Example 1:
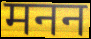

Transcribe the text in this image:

मनन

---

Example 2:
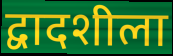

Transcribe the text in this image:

द्वादशीला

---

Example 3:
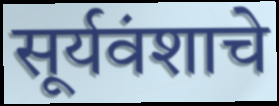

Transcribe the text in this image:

सूर्यवंशाचे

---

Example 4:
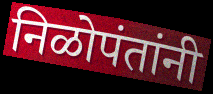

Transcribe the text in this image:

निळोपंतांनी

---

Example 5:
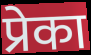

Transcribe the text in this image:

प्रेका